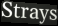
Strays